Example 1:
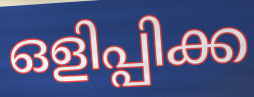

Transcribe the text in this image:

ഒളിപ്പിക്ക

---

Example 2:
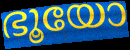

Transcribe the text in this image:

ഭൂയോ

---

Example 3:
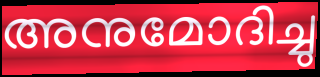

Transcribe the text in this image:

അനുമോദിച്ചു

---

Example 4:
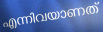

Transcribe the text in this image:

എന്നിവയാണത്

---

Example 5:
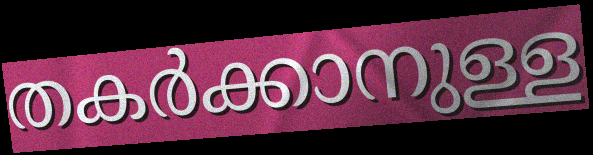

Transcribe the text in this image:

തകർക്കാനുള്ള